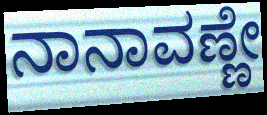
ನಾನಾವಣ್ಣೇ